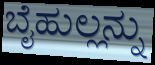
ಬೈಹುಲ್ಲನ್ನು